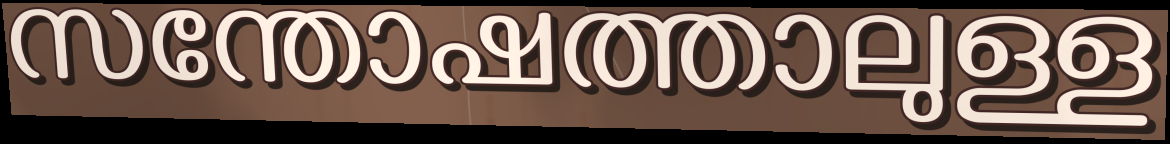
സന്തോഷത്താലുള്ള